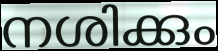
നശിക്കും